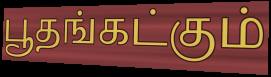
பூதங்கட்கும்